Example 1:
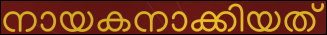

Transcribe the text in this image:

നായകനാക്കിയത്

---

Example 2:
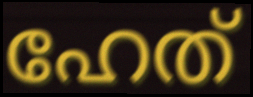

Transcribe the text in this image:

ഹേത്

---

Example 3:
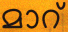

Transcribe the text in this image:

മാറ്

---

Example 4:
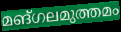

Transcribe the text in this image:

മങ്ഗലമുത്തമം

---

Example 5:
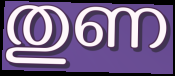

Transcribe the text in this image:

തുണ